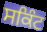
ਸਕਿੰਟ